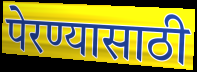
पेरण्यासाठी